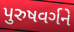
પુરુષવર્ગને